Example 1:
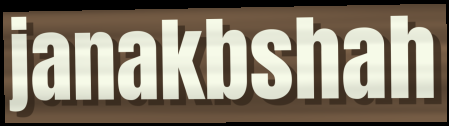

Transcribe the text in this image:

janakbshah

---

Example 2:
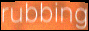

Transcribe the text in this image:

rubbing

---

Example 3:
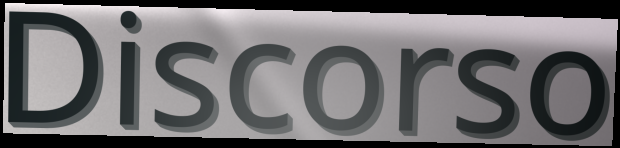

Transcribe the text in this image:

Discorso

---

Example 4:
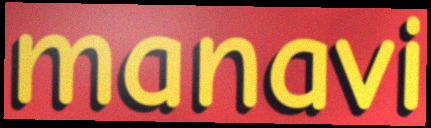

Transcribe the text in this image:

manavi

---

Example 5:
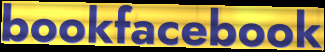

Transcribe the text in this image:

bookfacebook